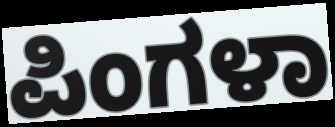
ಪಿಂಗಳಾ